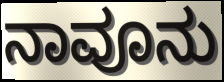
ನಾವೂನು